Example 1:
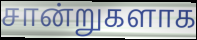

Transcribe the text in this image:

சான்றுகளாக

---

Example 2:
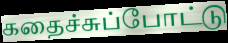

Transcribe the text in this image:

கதைச்சுப்போட்டு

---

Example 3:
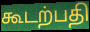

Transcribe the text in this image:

கூடற்பதி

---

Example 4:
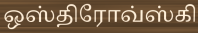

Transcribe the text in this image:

ஒஸ்திரோவ்ஸ்கி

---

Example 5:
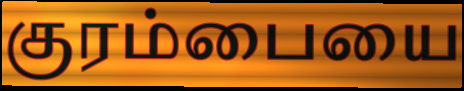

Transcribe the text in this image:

குரம்பையை